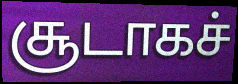
சூடாகச்